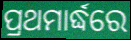
ପ୍ରଥମାର୍ଦ୍ଧରେ